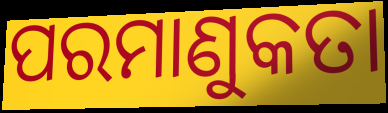
ପରମାଣୁକତା